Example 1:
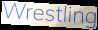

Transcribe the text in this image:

Wrestling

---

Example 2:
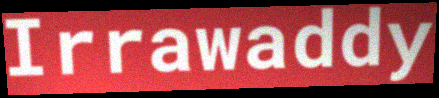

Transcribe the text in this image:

Irrawaddy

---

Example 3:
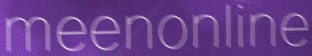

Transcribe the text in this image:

meenonline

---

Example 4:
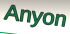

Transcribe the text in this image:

Anyon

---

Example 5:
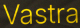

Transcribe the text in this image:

Vastra